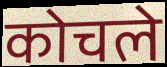
कोचले